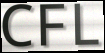
CFL